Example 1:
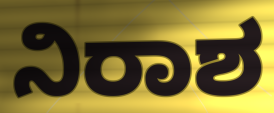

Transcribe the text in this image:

ನಿರಾಶ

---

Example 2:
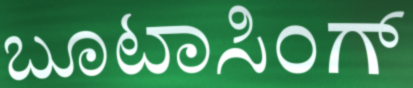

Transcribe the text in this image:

ಬೂಟಾಸಿಂಗ್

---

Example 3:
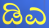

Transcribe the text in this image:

ಡಿಎ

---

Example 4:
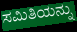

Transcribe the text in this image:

ಸಮಿತಿಯನ್ನು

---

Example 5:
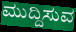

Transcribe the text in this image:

ಮುದ್ದಿಸುವ